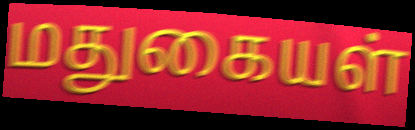
மதுகையள்